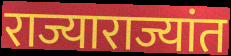
राज्याराज्यांत